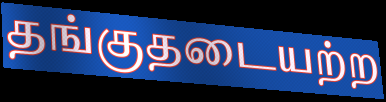
தங்குதடையற்ற